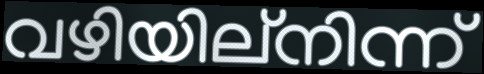
വഴിയില്നിന്ന്